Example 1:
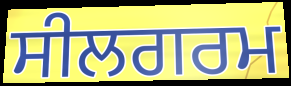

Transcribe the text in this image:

ਸੀਲਗਰਮ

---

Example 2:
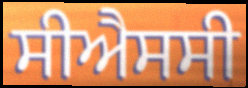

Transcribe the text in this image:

ਸੀਐਸਸੀ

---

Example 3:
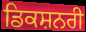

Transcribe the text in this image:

ਡਿਕਸ਼ਨਰੀ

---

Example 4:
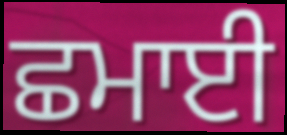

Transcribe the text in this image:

ਛਮਾਈ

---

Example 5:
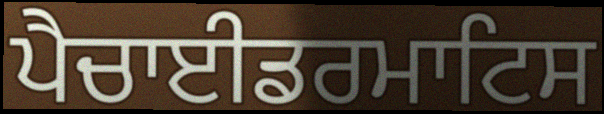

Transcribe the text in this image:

ਪੈਚਾਈਡਰਮਾਟਿਸ